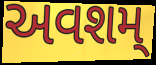
અવશમ્